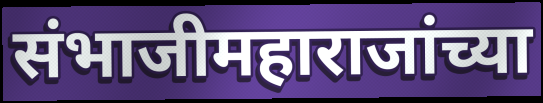
संभाजीमहाराजांच्या